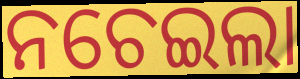
ନଚେଇଲା